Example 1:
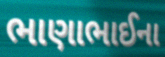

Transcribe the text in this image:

ભાણાભાઈના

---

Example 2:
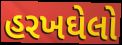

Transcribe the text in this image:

હરખઘેલો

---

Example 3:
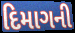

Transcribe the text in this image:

દિમાગની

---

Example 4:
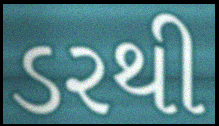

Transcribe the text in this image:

ડરથી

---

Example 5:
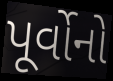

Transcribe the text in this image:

પૂર્વોનો